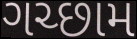
ગચ્છામ